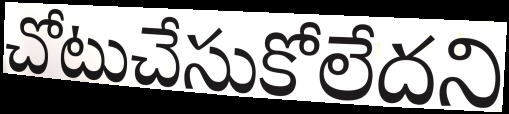
చోటుచేసుకోలేదని